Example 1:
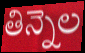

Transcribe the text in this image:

తిన్నెల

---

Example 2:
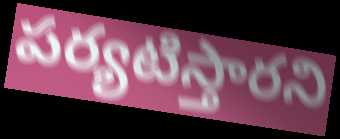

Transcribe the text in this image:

పర్యటిస్తారని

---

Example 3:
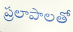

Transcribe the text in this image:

ప్రలాపాలతో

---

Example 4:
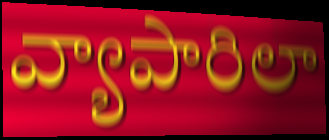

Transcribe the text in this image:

వ్యాపారిలా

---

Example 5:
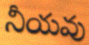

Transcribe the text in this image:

నీయవు